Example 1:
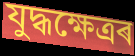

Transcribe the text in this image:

যুদ্ধক্ষেত্ৰৰ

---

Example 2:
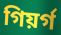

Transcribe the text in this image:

গিয়ৰ্গ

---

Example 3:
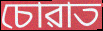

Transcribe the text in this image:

চোৱাত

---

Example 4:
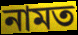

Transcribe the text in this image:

নামত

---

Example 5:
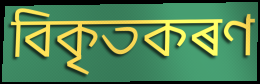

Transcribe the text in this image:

বিকৃতকৰণ